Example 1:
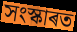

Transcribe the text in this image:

সংস্কাৰত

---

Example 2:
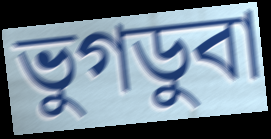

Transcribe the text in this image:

ভুগডুবা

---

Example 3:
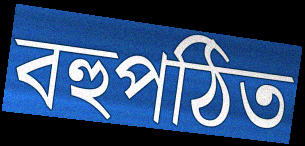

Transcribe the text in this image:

বহুপঠিত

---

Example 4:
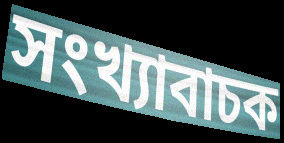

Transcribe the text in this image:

সংখ্যাবাচক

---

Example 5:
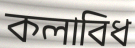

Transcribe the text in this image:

কলাবিধ